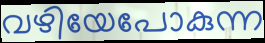
വഴിയേപോകുന്ന